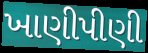
ખાણીપીણી